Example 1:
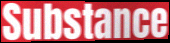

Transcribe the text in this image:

Substance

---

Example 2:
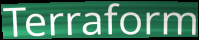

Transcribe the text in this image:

Terraform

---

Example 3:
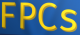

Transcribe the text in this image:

FPCs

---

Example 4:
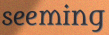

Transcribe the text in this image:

seeming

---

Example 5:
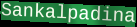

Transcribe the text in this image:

Sankalpadina